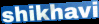
shikhavi